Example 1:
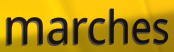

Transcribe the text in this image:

marches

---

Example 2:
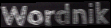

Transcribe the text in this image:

Wordnik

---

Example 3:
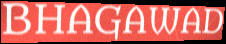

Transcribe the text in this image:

BHAGAWAD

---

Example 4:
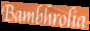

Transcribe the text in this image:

Bambhrolia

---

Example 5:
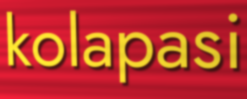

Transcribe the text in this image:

kolapasi